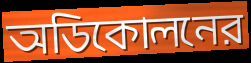
অডিকোলনের